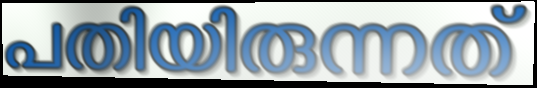
പതിയിരുന്നത്